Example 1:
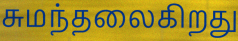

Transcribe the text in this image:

சுமந்தலைகிறது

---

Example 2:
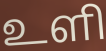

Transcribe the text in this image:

உளி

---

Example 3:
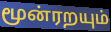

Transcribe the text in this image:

மூன்ரறயும்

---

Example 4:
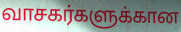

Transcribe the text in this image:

வாசகர்களுக்கான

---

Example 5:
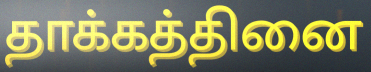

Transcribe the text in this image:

தாக்கத்தினை